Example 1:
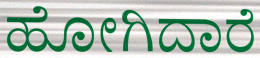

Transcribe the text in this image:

ಹೋಗಿದಾರೆ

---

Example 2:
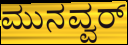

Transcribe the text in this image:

ಮುನವ್ವರ್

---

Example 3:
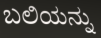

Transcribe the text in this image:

ಬಲಿಯನ್ನು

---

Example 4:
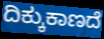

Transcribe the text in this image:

ದಿಕ್ಕುಕಾಣದೆ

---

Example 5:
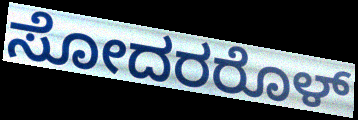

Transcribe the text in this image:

ಸೋದರರೊಳ್